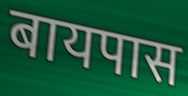
बायपास